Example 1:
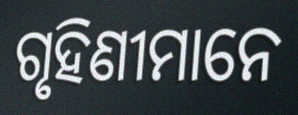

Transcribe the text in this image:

ଗୃହିଣୀମାନେ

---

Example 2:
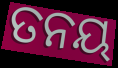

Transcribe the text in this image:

ତନୟ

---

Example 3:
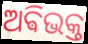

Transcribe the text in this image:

ଅଵିଭକ୍ତ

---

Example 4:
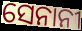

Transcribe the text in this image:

ସେନାନୀ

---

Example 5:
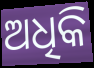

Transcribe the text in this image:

ଅଧିକି